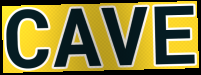
CAVE